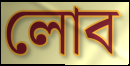
লোব